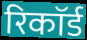
रिकॉर्ड